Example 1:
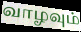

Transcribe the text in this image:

வாழவும்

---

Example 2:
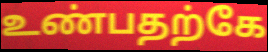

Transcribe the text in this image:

உண்பதற்கே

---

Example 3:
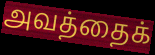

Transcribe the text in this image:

அவத்தைக்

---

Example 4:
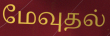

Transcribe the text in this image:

மேவுதல்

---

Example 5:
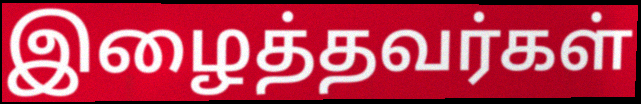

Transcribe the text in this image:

இழைத்தவர்கள்